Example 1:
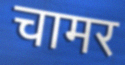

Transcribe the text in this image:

चामर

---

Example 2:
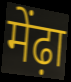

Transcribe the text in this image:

मेंढ़ा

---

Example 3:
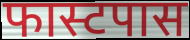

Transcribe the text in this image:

फास्टपास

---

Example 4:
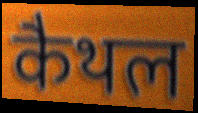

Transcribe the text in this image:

कैथल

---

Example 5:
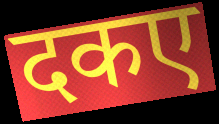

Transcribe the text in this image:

दकए